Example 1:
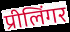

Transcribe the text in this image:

प्रीलिंगर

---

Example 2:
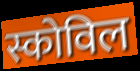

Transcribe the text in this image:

स्कोविल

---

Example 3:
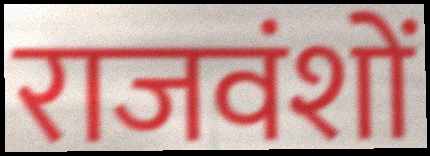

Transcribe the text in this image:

राजवंशों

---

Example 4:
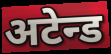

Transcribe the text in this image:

अटेन्ड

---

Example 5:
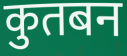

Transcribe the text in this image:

कुतबन